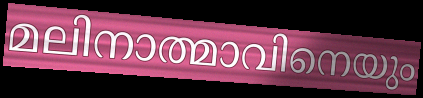
മലിനാത്മാവിനെയും